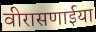
वीरासणाईया